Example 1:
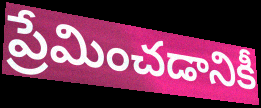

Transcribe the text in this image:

ప్రేమించడానికీ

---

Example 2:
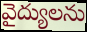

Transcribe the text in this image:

వైద్యులను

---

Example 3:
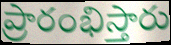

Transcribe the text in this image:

ప్రారంభిస్తారు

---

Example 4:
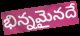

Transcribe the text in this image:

భిన్నమైనదే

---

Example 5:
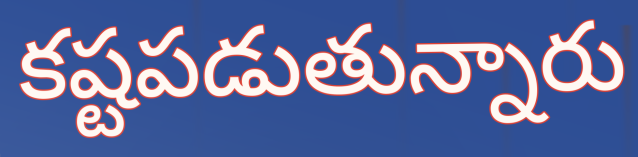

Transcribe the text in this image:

కష్టపడుతున్నారు